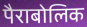
पैराबोलिक